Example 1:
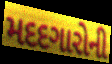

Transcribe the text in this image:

મદદગારોની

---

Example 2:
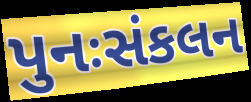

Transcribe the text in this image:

પુનઃસંકલન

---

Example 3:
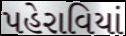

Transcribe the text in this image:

પહેરાવિયાં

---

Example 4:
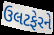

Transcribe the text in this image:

ઉલટફેરને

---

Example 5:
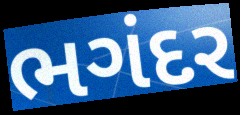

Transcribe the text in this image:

ભગંદર